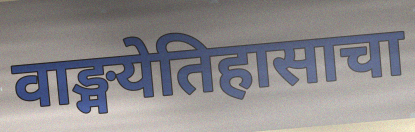
वाङ्मयेतिहासाचा